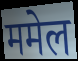
ममेल